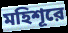
মহিশূরে